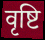
वृष्टि